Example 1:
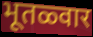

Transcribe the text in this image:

भूतळ्वार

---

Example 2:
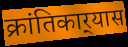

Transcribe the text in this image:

क्रांतिकार्यास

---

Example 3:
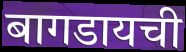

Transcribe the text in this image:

बागडायची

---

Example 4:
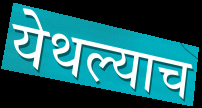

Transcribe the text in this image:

येथल्याच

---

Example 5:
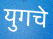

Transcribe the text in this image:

युगचे